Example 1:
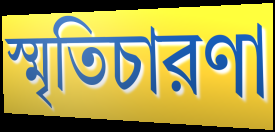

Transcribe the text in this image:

স্মৃতিচারণা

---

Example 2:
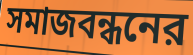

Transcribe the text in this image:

সমাজবন্ধনের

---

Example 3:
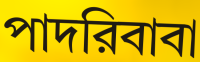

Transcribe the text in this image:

পাদরিবাবা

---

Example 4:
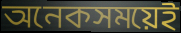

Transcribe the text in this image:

অনেকসময়েই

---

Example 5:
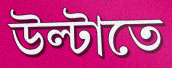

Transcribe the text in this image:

উল্টাতে